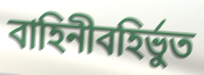
বাহিনীবহির্ভুত